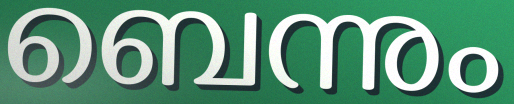
ബെന്നും